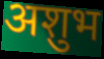
अशुभ